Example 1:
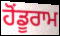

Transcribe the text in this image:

ਹੋਂਡੂਰਾਮ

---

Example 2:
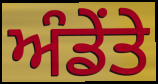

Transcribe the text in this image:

ਅੰਡੇਂਤੇ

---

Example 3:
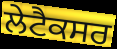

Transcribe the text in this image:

ਲੇਟੈਕਸਰ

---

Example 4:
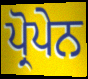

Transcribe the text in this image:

ਪ੍ਰੋਪੇਨ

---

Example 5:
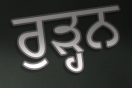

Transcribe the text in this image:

ਰੁੜ੍ਹਨ